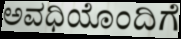
ಅವಧಿಯೊಂದಿಗೆ